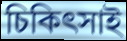
চিকিৎসাই